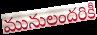
మునులందరికీ